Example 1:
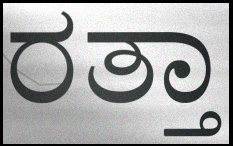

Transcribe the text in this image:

ರತ್ತಾ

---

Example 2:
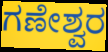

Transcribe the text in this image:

ಗಣೇಶ್ವರ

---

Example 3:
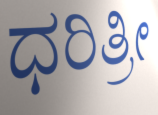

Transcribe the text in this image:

ಧರಿತ್ರೀ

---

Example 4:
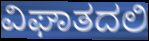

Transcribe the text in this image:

ವಿಘಾತದಲಿ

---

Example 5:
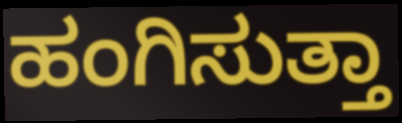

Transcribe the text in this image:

ಹಂಗಿಸುತ್ತಾ